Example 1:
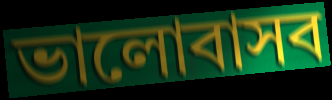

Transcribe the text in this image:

ভালোবাসব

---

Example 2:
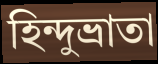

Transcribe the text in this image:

হিন্দুভ্রাতা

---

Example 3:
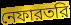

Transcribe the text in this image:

নেফারতরি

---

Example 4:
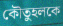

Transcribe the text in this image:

কৌতুহলকে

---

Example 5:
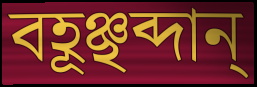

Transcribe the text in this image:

বহূঞ্ছব্দান্